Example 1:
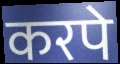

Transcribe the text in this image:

करपे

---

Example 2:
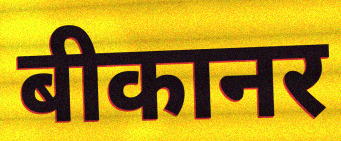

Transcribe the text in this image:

बीकानर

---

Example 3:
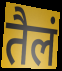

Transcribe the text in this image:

तैलं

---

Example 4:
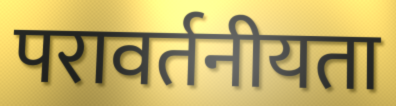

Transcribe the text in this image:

परावर्तनीयता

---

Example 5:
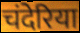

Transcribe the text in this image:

चंदेरिया